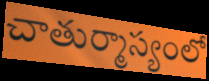
చాతుర్మాస్యంలో